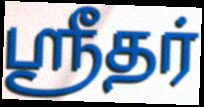
ஸ்ரீதர்